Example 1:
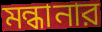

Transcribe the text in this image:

মন্ধানার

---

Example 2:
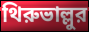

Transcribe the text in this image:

থিরুভাল্লুর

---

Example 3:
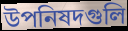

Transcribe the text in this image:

উপনিষদগুলি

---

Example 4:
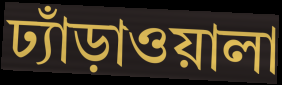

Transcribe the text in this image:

ঢ্যাঁড়াওয়ালা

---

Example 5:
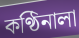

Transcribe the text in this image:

কণ্ঠিনালা